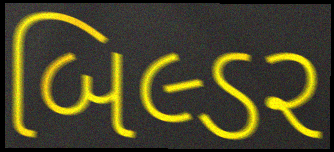
બિલ્ડર